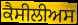
ਕੈਸੀਲੀਅਸ